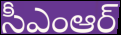
సీఎంఆర్